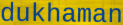
dukhaman